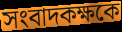
সংবাদকক্ষকে